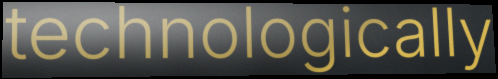
technologically